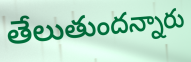
తేలుతుందన్నారు